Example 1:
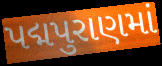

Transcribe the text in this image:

પદ્મપુરાણમાં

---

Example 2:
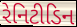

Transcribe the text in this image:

રેનિટીડિન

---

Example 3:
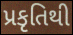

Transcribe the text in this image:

પ્રકૃતિથી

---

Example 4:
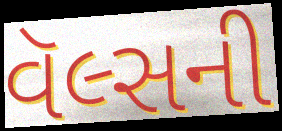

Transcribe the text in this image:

વૅલ્સની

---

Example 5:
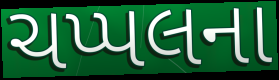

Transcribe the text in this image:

ચપ્પલના